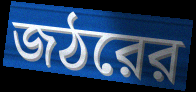
জঠরের